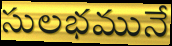
సులభమునే